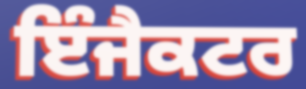
ਇੰਜੈਕਟਰ